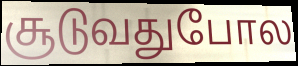
சூடுவதுபோல